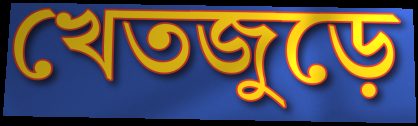
খেতজুড়ে